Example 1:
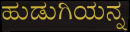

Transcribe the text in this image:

ಹುಡುಗಿಯನ್ನ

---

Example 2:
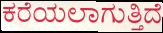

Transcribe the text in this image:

ಕರೆಯಲಾಗುತ್ತಿದೆ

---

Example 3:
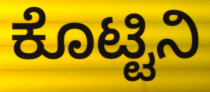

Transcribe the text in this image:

ಕೊಟ್ಟಿನಿ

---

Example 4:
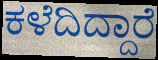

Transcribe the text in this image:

ಕಳೆದಿದ್ದಾರೆ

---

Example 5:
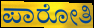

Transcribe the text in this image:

ಪಾರೋತಿ